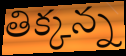
తిక్కన్న